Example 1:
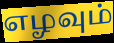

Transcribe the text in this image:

எழவும்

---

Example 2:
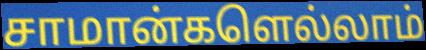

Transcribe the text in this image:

சாமான்களெல்லாம்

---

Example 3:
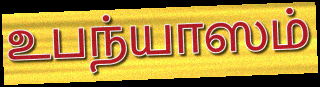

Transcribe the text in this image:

உபந்யாஸம்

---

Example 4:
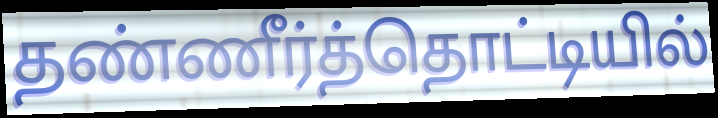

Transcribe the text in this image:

தண்ணீர்த்தொட்டியில்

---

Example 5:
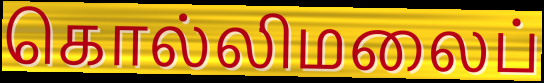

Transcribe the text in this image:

கொல்லிமலைப்